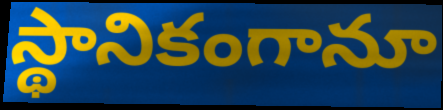
స్థానికంగానూ